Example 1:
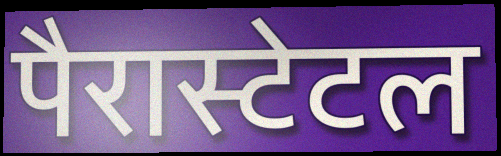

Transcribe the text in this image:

पैरास्टेटल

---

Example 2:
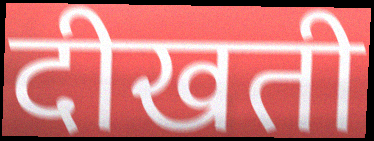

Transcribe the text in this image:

दीखती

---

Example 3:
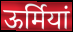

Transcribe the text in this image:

ऊर्मियां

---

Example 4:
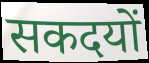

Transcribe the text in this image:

सकदयों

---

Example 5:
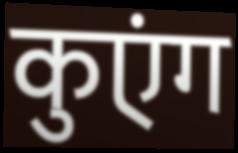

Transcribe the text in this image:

कुएंग